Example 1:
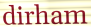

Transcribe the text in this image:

dirham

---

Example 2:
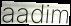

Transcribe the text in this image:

aadim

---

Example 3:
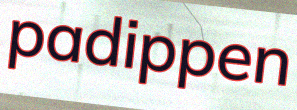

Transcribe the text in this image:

padippen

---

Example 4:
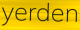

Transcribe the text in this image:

yerden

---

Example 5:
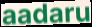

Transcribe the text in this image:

aadaru